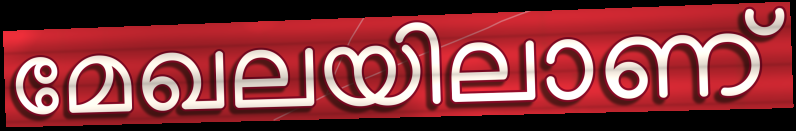
മേഖലയിലാണ്